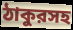
ঠাকুরসহ